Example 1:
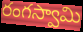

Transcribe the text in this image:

రంగస్వామి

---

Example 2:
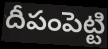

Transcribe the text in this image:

దీపంపెట్టి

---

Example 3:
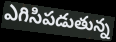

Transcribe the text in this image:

ఎగిసిపడుతున్న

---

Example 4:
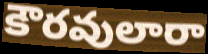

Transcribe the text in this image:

కౌరవులారా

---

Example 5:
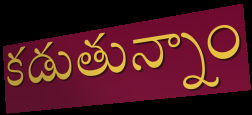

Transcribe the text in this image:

కడుతున్నాం